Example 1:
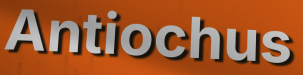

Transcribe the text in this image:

Antiochus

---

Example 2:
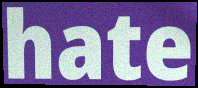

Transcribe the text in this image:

hate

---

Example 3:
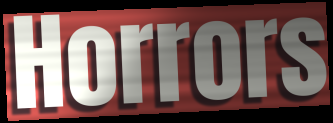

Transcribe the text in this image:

Horrors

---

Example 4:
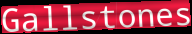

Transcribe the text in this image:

Gallstones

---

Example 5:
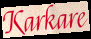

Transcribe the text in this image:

Karkare